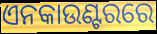
ଏନକାଉଣ୍ଟରରେ